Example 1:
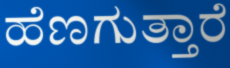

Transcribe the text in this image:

ಹೆಣಗುತ್ತಾರೆ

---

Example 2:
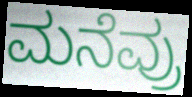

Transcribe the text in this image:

ಮನೆವ್ರು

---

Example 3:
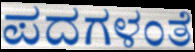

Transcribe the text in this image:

ಪದಗಳಂತೆ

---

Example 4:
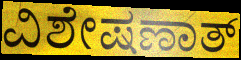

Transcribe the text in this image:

ವಿಶೇಷಣಾತ್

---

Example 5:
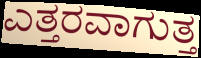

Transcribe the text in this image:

ಎತ್ತರವಾಗುತ್ತ